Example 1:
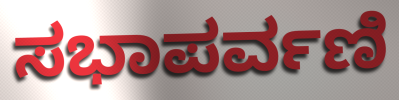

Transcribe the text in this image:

ಸಭಾಪರ್ವಣಿ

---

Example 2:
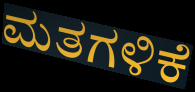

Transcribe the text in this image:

ಮತಗಳಿಕೆ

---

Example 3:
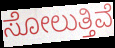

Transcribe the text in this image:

ಸೋಲುತ್ತಿವೆ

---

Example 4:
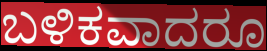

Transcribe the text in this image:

ಬಳಿಕವಾದರೂ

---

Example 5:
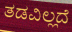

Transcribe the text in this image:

ತಡವಿಲ್ಲದೆ